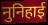
नुनिहाई